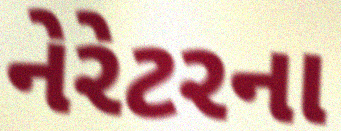
નેરેટરના